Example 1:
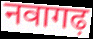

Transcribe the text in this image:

नवागढ़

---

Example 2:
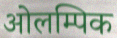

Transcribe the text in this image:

ओलम्पिक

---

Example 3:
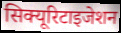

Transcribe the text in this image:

सिक्यूरिटाइजेशन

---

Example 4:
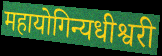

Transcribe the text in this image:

महायोगिन्यधीश्वरी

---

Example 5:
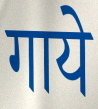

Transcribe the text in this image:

गाये